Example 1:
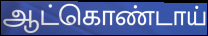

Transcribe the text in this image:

ஆட்கொண்டாய்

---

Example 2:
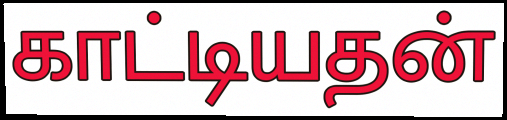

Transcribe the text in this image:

காட்டியதன்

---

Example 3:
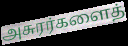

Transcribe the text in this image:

அசுரர்களைத்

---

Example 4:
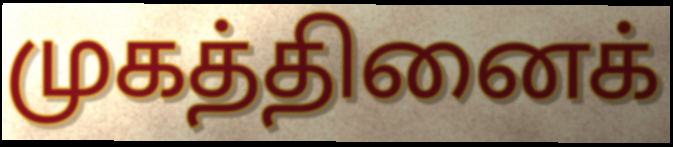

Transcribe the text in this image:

முகத்தினைக்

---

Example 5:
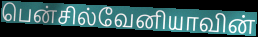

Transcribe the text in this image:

பென்சில்வேனியாவின்